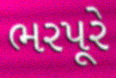
ભરપૂરે